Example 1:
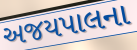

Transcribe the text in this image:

અજયપાલના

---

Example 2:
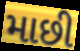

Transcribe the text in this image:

માછી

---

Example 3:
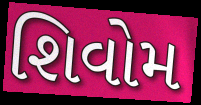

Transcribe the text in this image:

શિવોમ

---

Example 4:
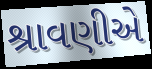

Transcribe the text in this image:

શ્રાવણીએ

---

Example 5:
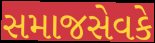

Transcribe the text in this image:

સમાજસેવકે